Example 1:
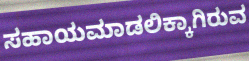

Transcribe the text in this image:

ಸಹಾಯಮಾಡಲಿಕ್ಕಾಗಿರುವ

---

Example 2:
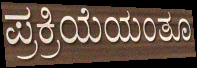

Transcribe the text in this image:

ಪ್ರಕ್ರಿಯೆಯಂತೂ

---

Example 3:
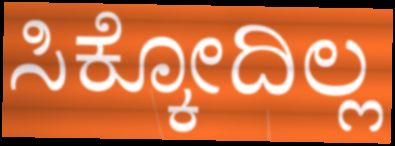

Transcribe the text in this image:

ಸಿಕ್ಕೋದಿಲ್ಲ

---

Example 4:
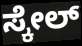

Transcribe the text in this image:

ಸ್ಕೇಲ್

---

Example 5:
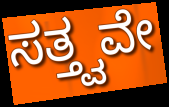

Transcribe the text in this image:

ಸತ್ತ್ವವೇ